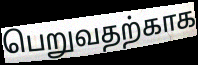
பெறுவதற்காக